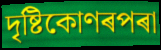
দৃষ্টিকোণৰপৰা